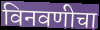
विनवणीचा